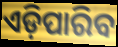
ଏଡ଼ିପାରିବ